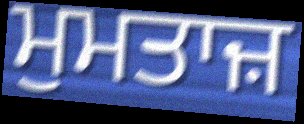
ਮੁਮਤਾਜ਼